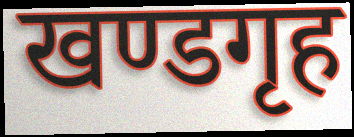
खण्डगृह